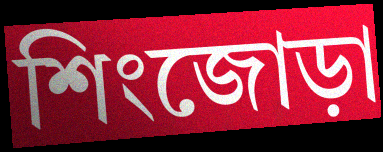
শিংজোড়া